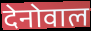
देनोवाल